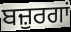
ਬਜ਼ੁਰਗਾਂ